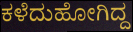
ಕಳೆದುಹೋಗಿದ್ದ